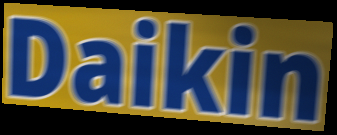
Daikin